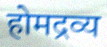
होमद्रव्य